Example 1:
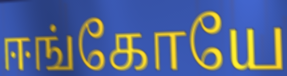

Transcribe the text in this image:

ஈங்கோயே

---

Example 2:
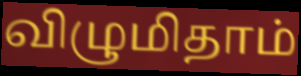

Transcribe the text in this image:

விழுமிதாம்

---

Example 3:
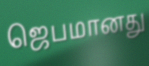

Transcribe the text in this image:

ஜெபமானது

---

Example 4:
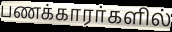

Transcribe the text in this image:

பணக்காரர்களில்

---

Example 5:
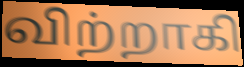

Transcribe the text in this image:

விற்றாகி